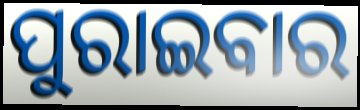
ପୁରାଇବାର